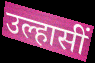
उल्हासीं